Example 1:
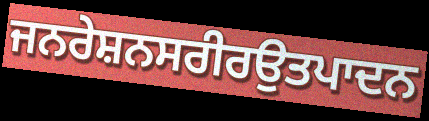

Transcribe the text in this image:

ਜਨਰੇਸ਼ਨਸਰੀਰਉਤਪਾਦਨ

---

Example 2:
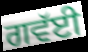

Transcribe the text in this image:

ਗਵੱਈ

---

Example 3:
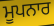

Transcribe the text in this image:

ਮੂਪਨਾਰ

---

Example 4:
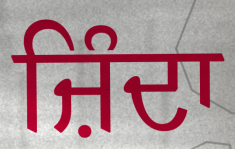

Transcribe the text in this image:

ਜ਼ਿੰਦਾ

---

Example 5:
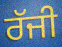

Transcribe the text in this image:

ਰੱਜੀ